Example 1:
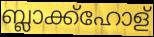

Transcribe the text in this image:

ബ്ലാക്ക്ഹോള്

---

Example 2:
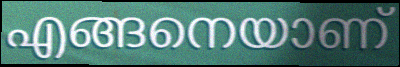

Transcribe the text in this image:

എങ്ങനെയാണ്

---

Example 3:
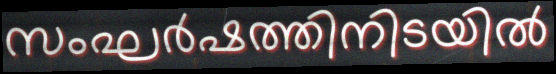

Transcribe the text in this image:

സംഘർഷത്തിനിടയിൽ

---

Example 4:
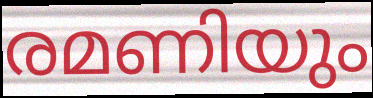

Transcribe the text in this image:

രമണിയും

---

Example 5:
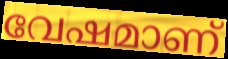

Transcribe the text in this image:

വേഷമാണ്